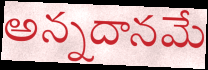
అన్నదానమే